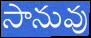
సానువు